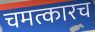
चमत्कारच